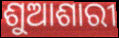
ଶୁଆଶାରୀ